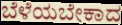
ಬೆಳೆಯಬೇಕಾದ